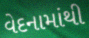
વેદનામાંથી